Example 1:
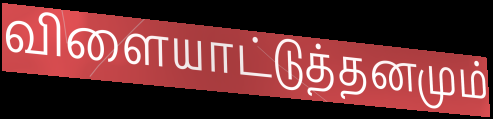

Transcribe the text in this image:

விளையாட்டுத்தனமும்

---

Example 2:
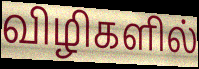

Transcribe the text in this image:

விழிகளில்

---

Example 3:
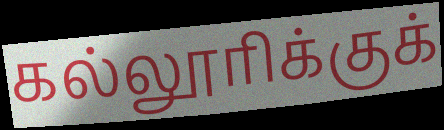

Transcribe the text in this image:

கல்லூரிக்குக்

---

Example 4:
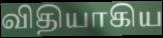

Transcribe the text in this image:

விதியாகிய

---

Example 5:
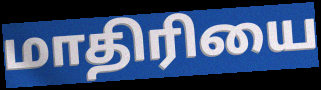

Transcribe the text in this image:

மாதிரியை